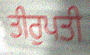
ਤੀਰੁਪਤੀ